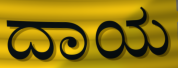
ದಾಯ